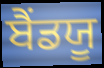
ਬੈਂਡਯੂ